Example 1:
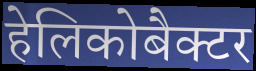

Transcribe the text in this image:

हेलिकोबैक्टर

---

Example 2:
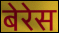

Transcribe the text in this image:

बेरेस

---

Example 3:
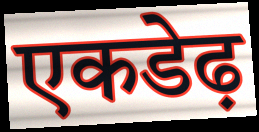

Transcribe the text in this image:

एकडेढ़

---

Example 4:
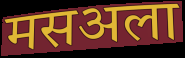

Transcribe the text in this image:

मसअला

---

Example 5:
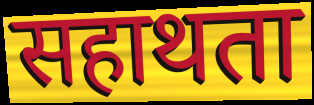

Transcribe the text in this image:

सहाथता